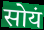
सोयं